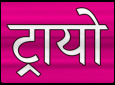
ट्रायो